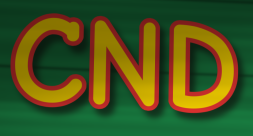
CND